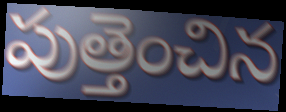
పుత్తెంచిన